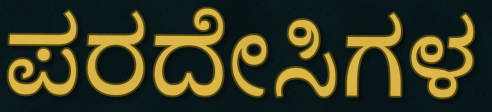
ಪರದೇಸಿಗಳ